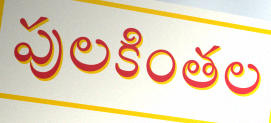
పులకింతల